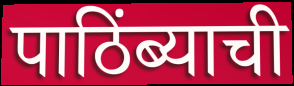
पाठिंब्याची